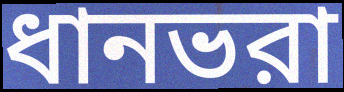
ধানভরা